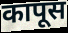
कापूस